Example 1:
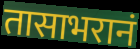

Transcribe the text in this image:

तासाभरानं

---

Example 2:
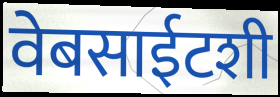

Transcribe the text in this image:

वेबसाईटशी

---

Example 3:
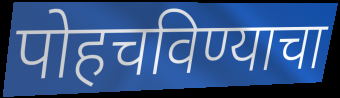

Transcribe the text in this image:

पोहचविण्याचा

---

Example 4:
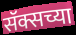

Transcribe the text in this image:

सॅक्सच्या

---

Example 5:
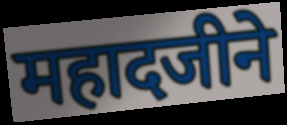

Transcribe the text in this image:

महादजीने